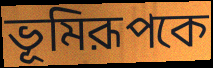
ভূমিরূপকে